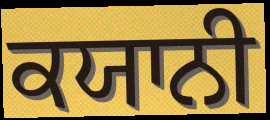
ਕਯਾਨੀ